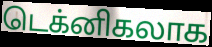
டெக்னிகலாக